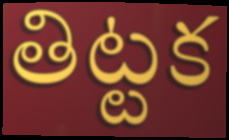
తిట్టక